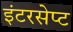
इंटरसेप्‍ट